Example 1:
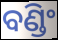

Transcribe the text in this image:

ବଣ୍ଡିଂ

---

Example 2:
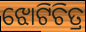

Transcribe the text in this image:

ଝୋଟିଚିତ୍ର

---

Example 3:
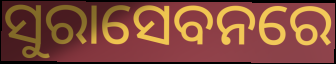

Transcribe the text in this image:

ସୁରାସେବନରେ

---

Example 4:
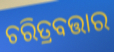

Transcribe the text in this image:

ଚରିତ୍ରବତ୍ତାର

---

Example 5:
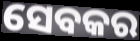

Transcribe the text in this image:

ସେବକର